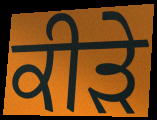
ਕੀੜੇ